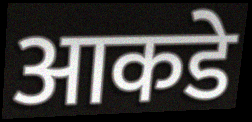
आकडे